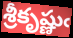
శ్రీకృష్ణుఁ